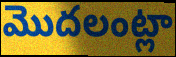
మొదలంట్లా